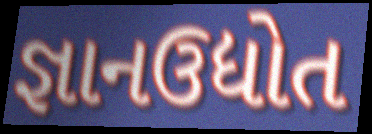
જ્ઞાનઉદ્યોત